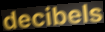
decibels